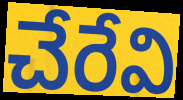
చేరేవి